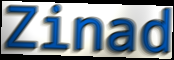
Zinad